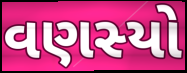
વણસ્યો